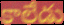
కాలేడు